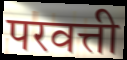
परवत्ती